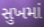
સુખમાં